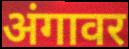
अंगावर